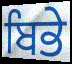
ਬਿਭੇ